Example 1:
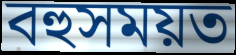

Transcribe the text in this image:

বহুসময়ত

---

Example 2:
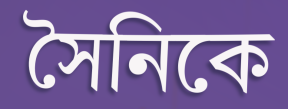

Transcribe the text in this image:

সৈনিকে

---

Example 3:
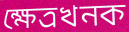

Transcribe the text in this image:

ক্ষেত্ৰখনক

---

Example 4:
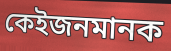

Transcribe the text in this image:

কেইজনমানক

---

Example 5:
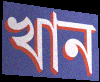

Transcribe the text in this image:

খান